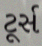
ટૂર્સ